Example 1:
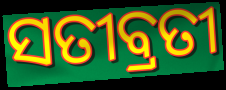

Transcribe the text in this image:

ସତୀବ୍ରତୀ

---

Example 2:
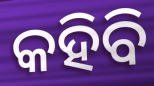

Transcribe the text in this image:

କହିବି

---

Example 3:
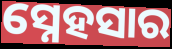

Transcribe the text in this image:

ସ୍ନେହସାର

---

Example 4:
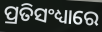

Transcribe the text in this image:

ପ୍ରତିସଂଧ୍ୟାରେ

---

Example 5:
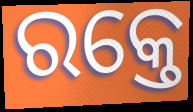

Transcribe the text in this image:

ରକ୍ତେ